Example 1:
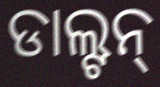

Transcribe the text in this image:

ଡାଲ୍ଟନ୍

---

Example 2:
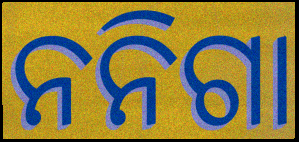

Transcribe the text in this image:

ନନିଗା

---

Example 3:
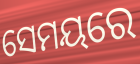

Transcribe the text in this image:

ସେମୟରେ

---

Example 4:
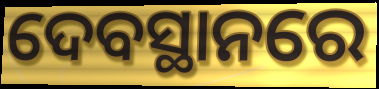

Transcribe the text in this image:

ଦେବସ୍ଥାନରେ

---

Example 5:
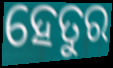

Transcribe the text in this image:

ହେତୁର